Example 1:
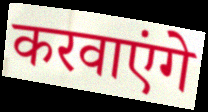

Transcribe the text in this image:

करवाएंगे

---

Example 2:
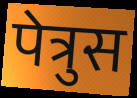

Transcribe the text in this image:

पेत्रुस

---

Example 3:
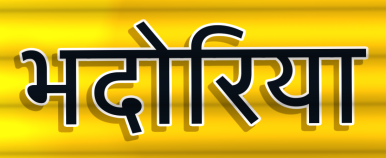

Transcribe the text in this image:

भदोरिया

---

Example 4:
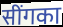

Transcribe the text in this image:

सींगका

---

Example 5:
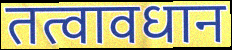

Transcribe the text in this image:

तत्‍वावधान